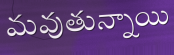
మవుతున్నాయి